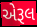
એરૂલ